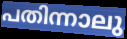
പതിന്നാലു